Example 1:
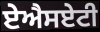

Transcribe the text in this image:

ਏਐਸਏਟੀ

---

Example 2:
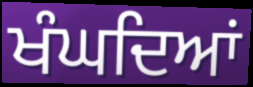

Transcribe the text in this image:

ਖੰਘਦਿਆਂ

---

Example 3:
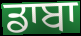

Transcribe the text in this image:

ਡਾਬਾ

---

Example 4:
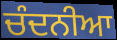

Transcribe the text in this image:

ਚੰਦਨੀਆ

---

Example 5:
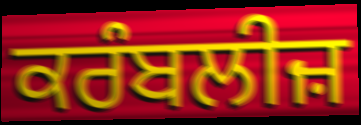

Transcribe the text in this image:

ਕਰੰਬਲੀਜ਼